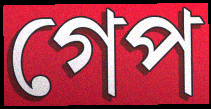
গেপ